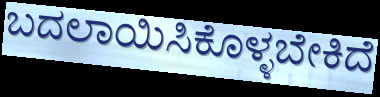
ಬದಲಾಯಿಸಿಕೊಳ್ಳಬೇಕಿದೆ